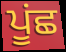
ਪੂਂਛ